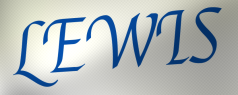
LEWIS